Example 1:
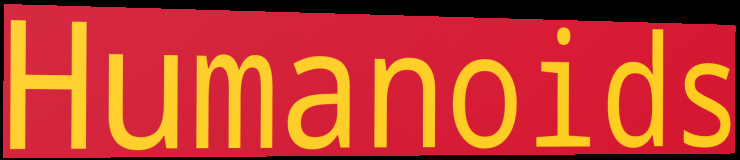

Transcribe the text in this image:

Humanoids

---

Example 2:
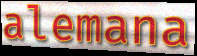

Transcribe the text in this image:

alemana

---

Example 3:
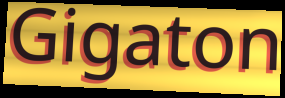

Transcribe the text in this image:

Gigaton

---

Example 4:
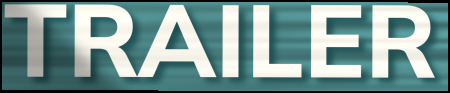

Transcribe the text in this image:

TRAILER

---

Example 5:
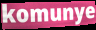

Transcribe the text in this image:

komunye